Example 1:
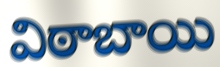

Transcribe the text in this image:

విఠాబాయి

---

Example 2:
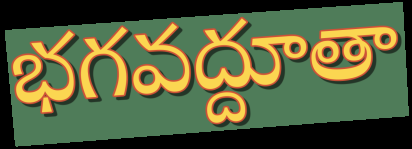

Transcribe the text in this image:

భగవద్దూతా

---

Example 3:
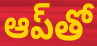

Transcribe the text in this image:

ఆప్‌తో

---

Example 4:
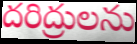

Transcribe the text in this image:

దరిద్రులను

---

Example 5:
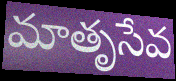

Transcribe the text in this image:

మాతృసేవ